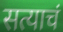
सत्याचं